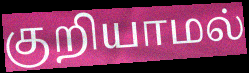
குறியாமல்